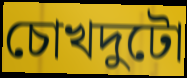
চোখদুটো